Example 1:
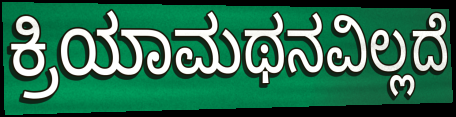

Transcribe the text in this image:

ಕ್ರಿಯಾಮಥನವಿಲ್ಲದೆ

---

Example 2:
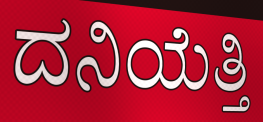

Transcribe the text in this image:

ದನಿಯೆತ್ತಿ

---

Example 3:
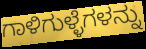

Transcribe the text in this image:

ಗಾಳಿಗುಳ್ಳೆಗಳನ್ನು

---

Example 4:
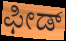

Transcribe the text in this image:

ಫೀಡ್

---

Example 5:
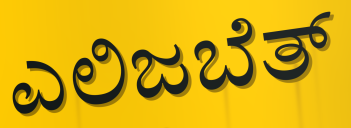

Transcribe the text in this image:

ಎಲಿಜಬೆತ್